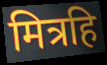
मित्रहि